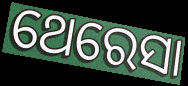
ଥେରେସା